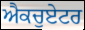
ਐਕਚੁਏਟਰ